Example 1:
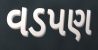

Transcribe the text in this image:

વડપણ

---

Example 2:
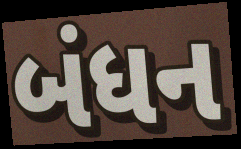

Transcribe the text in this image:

બંધન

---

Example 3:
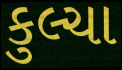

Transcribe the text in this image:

કુલ્ચા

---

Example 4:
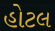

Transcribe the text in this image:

હોટલ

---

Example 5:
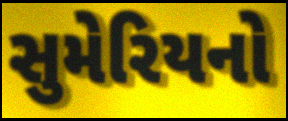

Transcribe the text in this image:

સુમેરિયનો